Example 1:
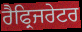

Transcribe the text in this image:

ਰੈਫ੍ਰਿਜਰੇਟਰ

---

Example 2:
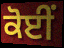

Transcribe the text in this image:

ਕੋਈਂ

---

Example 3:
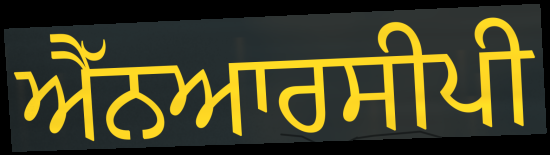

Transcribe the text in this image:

ਐੱਨਆਰਸੀਪੀ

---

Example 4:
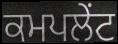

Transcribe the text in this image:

ਕਮਪਲੇਂਟ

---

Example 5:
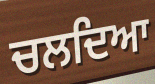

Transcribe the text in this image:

ਚਲਦਿਆ